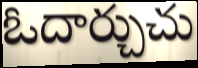
ఓదార్చుచు